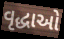
વૃદ્ધાઓ